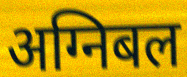
अग्निबल